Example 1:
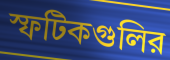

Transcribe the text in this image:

স্ফটিকগুলির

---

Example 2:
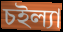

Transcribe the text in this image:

চইল্যা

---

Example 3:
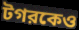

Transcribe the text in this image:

টগরকেও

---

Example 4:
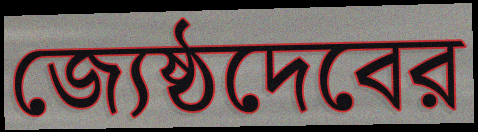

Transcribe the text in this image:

জ্যেষ্ঠদেবের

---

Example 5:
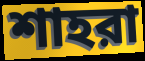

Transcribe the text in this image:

শাহরা